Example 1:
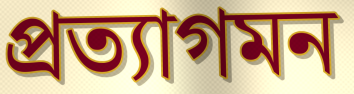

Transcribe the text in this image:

প্রত্যাগমন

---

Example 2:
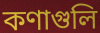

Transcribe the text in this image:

কণাগুলি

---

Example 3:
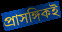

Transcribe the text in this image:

প্রাসঙ্গিকই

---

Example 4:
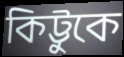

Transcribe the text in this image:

কিট্টুকে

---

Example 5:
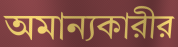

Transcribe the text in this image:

অমান্যকারীর